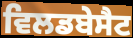
ਵਿਲਡਬੇਸੈਟ